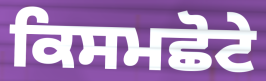
ਕਿਸਮਛੋਟੇ